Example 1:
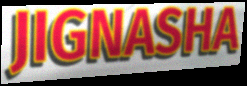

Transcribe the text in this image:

JIGNASHA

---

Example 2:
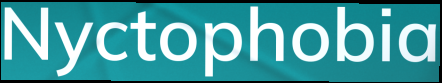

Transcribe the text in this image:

Nyctophobia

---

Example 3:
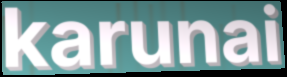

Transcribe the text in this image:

karunai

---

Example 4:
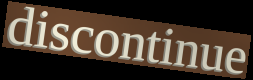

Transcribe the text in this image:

discontinue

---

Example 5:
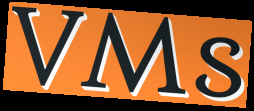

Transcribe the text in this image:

VMs